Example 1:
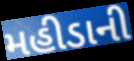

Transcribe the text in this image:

મહીડાની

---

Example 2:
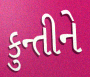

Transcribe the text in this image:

કુન્તીને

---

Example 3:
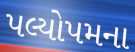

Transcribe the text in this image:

પલ્યોપમના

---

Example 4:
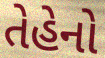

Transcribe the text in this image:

તેહેનો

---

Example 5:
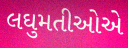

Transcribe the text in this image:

લઘુમતીઓએ